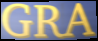
GRA